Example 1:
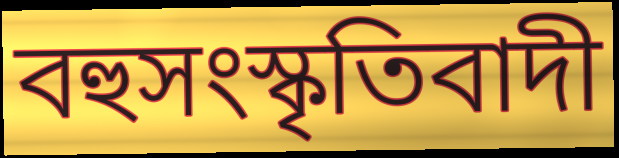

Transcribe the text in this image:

বহুসংস্কৃতিবাদী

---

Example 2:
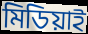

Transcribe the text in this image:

মিডিয়াই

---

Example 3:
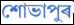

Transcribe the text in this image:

শোভাপুৰ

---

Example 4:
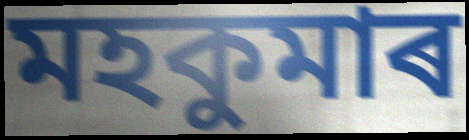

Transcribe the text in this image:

মহকুমাৰ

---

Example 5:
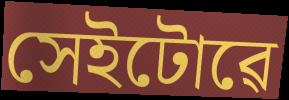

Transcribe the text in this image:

সেইটোৱে